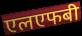
एलएफबी